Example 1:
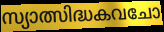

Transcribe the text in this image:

സ്യാത്സിദ്ധകവചോ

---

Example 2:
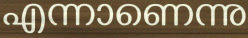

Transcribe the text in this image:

എന്നാണെന്നു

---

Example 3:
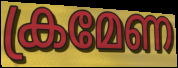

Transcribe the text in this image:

ക്രമേണ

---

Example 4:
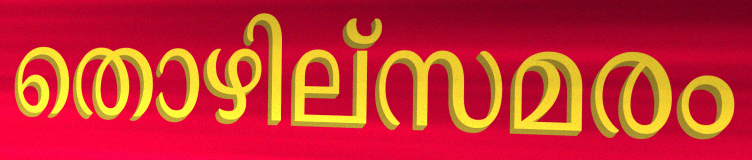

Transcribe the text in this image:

തൊഴില്സമരം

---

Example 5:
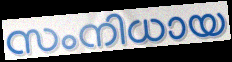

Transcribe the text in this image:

സംനിധായ